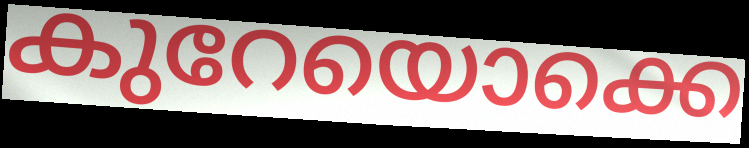
കുറേയൊക്കെ